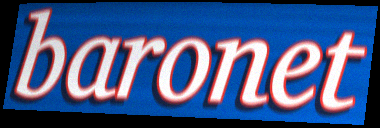
baronet